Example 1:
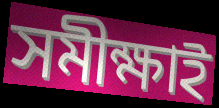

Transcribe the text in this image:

সমীক্ষাই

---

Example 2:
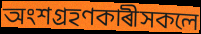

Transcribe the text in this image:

অংশগ্ৰহণকাৰীসকলে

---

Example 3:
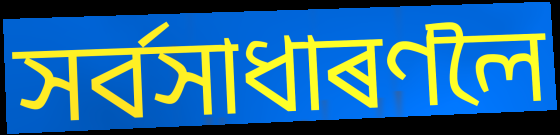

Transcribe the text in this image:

সৰ্বসাধাৰণলৈ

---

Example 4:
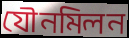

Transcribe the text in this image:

যৌনমিলন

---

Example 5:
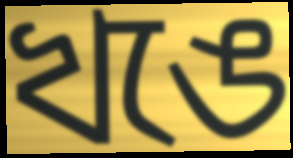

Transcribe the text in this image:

খঙে